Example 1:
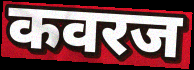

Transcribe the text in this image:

कवरज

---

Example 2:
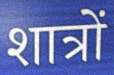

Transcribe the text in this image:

शात्रों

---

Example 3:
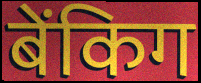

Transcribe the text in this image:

बेंकिग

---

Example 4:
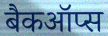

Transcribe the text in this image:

बैकऑप्स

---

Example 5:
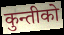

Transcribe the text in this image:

कुन्तीको